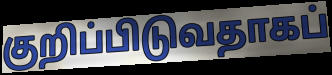
குறிப்பிடுவதாகப்